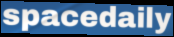
spacedaily